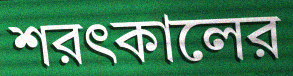
শরৎকালের